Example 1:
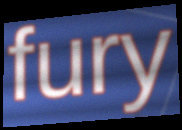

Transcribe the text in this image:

fury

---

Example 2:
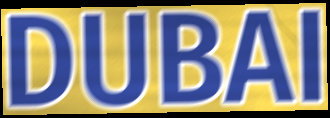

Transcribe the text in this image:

DUBAI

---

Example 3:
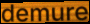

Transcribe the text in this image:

demure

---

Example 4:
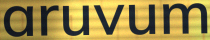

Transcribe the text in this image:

aruvum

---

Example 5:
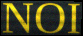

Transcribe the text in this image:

NOI